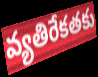
వ్యతిరేకతకు